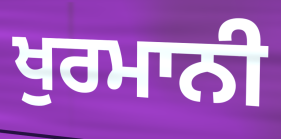
ਖੁਰਮਾਨੀ